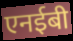
एनईबी